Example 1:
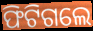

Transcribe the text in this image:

ଫିଟିଗଲେ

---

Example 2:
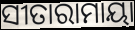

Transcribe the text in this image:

ସୀତାରାମାୟା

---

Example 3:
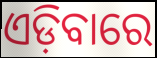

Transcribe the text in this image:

ଏଡ଼ିବାରେ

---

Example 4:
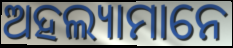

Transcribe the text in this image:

ଅହଲ୍ୟାମାନେ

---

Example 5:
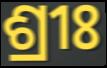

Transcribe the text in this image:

ଶ୍ରୀଃ